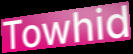
Towhid